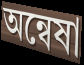
অন্বেষা